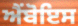
ਐਂਬੋਇਸ